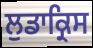
ਲੁਡਾਕ੍ਰਿਸ